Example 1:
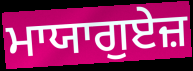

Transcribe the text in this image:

ਮਾਯਾਗੁਏਜ਼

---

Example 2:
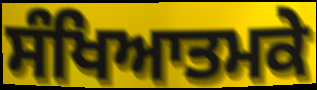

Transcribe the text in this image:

ਸੰਖਿਆਤਮਕੇ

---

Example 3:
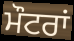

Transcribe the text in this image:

ਮੌਟਰਾਂ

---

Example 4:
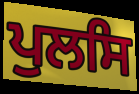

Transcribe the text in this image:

ਪੁਲਸਿ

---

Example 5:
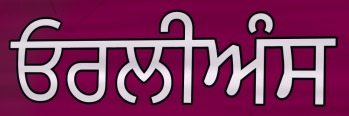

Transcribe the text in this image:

ਓਰਲੀਅੰਸ